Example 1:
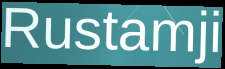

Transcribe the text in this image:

Rustamji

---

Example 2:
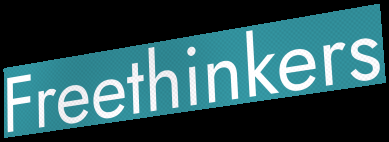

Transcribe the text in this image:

Freethinkers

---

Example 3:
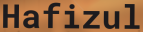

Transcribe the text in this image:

Hafizul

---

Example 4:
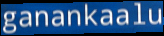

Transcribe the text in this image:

ganankaalu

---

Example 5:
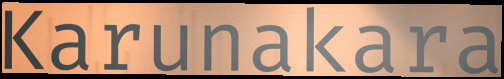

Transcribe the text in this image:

Karunakara